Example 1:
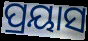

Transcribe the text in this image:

ପ୍ରୟାସ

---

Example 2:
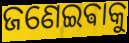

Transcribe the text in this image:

ଜଣେଇଵାକୁ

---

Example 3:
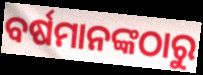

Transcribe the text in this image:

ବର୍ଷମାନଙ୍କଠାରୁ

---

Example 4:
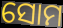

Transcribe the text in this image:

ସୋମ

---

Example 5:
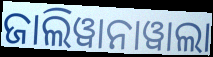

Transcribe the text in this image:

ଜାଲିୱାନାୱାଲା